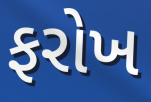
ફરોખ